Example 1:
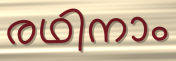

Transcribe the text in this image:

രഥിനാം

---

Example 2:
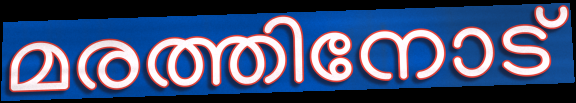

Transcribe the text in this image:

മരത്തിനോട്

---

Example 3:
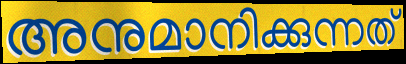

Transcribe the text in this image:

അനുമാനിക്കുന്നത്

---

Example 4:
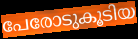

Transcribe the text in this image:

പേരോടുകൂടിയ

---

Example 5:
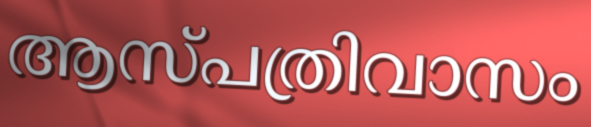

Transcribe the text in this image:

ആസ്പത്രിവാസം